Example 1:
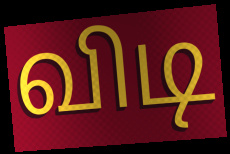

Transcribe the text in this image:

விடி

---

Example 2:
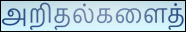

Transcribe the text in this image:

அறிதல்களைத்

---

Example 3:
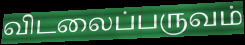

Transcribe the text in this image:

விடலைப்பருவம்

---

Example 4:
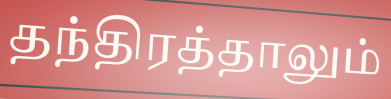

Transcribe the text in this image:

தந்திரத்தாலும்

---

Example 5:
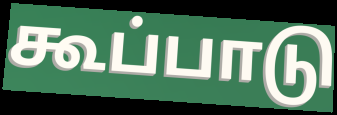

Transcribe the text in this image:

கூப்பாடு